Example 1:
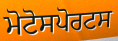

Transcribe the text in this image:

ਮੋਟੋਸਪੋਰਟਸ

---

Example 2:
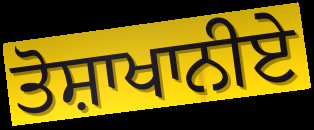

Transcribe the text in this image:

ਤੋਸ਼ਾਖਾਨੀਏ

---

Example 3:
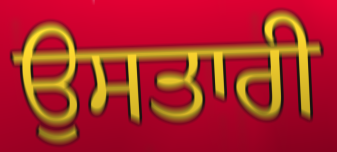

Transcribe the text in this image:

ਉਸਤਾਰੀ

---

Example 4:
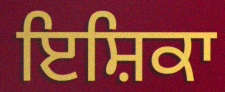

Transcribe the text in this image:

ਇਸ਼ਿਕਾ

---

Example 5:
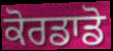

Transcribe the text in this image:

ਕੋਰਡਾਡੋ